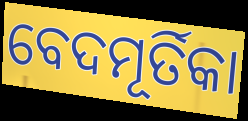
ବେଦମୂର୍ତିକା